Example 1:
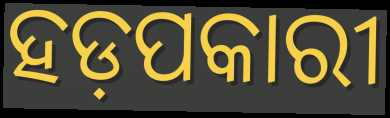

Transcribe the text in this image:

ହଡ଼ପକାରୀ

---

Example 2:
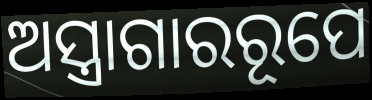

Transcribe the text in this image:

ଅସ୍ତ୍ରାଗାରରୂପେ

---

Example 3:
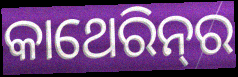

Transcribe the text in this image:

କାଥେରିନ୍‌ର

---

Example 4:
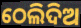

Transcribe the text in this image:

ଠେଲିଦିଅ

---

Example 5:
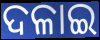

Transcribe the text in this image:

ଦଳାଇ